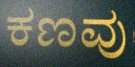
ಕಣವು